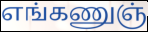
எங்கணுஞ்